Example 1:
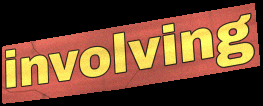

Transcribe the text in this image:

involving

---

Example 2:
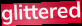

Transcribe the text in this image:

glittered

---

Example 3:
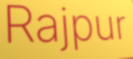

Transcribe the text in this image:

Rajpur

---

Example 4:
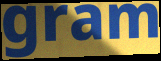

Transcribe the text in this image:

gram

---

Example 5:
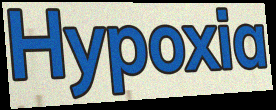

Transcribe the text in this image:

Hypoxia